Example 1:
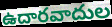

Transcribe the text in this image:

ఉదారవాదుల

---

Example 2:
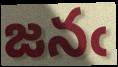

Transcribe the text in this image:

జనఁ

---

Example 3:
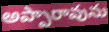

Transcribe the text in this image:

అప్పారావును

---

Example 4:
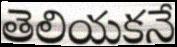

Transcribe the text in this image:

తెలియకనే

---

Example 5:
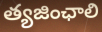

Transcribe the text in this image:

త్యజింఛాలి